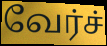
வேர்ச்